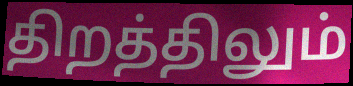
திறத்திலும்